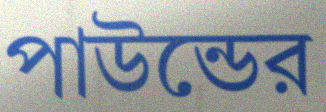
পাউন্ডের